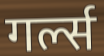
गर्ल्स